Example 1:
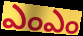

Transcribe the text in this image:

ఎంఎం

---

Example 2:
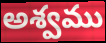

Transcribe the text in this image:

అశ్వము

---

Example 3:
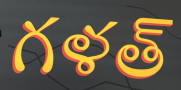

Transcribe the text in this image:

గళత్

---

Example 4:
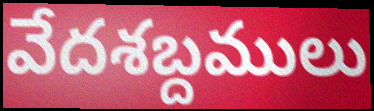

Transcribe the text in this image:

వేదశబ్దములు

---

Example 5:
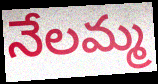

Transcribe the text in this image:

నేలమ్మ